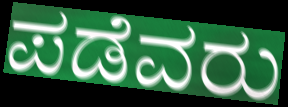
ಪಡೆವರು